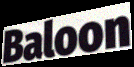
Baloon